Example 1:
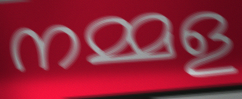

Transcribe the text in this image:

നമ്മള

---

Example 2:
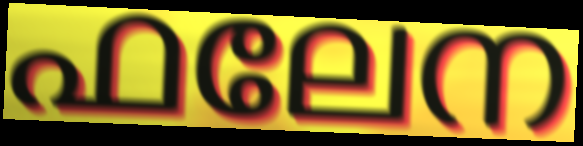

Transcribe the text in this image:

ഫലേന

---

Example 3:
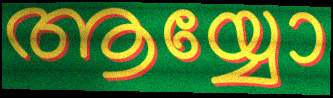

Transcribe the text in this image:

ആയ്യോ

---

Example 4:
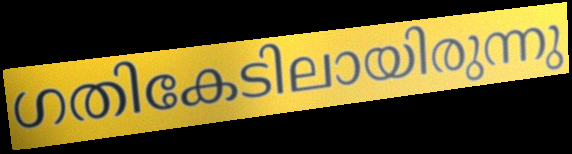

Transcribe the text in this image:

ഗതികേടിലായിരുന്നു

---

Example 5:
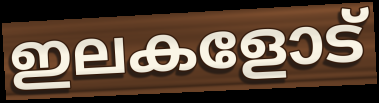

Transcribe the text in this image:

ഇലകളോട്